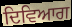
ਦਿਵਿਆਗ